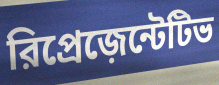
রিপ্রেজ়েন্টেটিভ